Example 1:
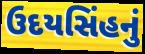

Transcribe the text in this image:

ઉદયસિંહનું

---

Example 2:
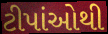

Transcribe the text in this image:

ટીપાંઓથી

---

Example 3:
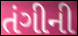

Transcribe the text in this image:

તંગીની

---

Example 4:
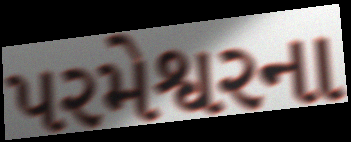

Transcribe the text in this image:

પરમેશ્વરના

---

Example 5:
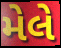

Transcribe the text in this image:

મેલે